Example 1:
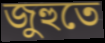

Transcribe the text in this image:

জুহুতে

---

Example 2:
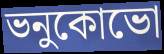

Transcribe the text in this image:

ভনুকোভো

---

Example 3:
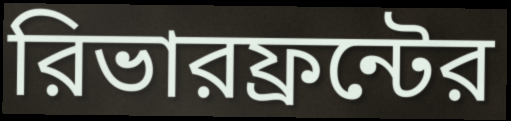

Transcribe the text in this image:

রিভারফ্রন্টের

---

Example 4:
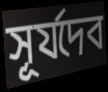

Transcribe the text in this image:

সূর্যদেব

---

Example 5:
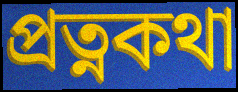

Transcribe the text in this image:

প্রত্নকথা